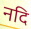
नदि